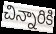
చిన్నారికి